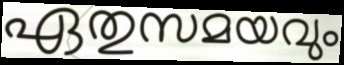
ഏതുസമയവും